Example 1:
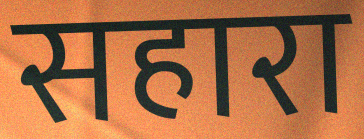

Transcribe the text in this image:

सहारा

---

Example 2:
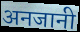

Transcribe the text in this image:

अनजानी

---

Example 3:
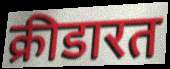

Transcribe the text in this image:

क्रीडारत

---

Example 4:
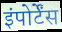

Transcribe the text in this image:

इंपोर्टेंस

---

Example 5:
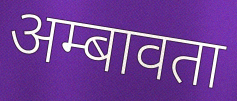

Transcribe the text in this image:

अम्बावता